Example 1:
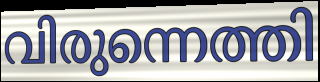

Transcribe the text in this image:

വിരുന്നെത്തി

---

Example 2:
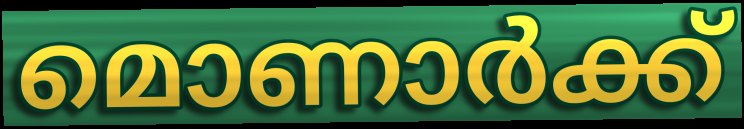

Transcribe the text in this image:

മൊണാർക്ക്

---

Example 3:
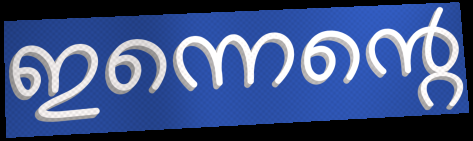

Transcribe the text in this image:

ഇന്നെന്റെ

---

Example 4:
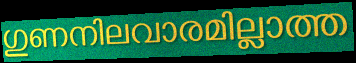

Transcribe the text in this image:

ഗുണനിലവാരമില്ലാത്ത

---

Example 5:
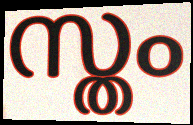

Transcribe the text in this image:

സ്തം